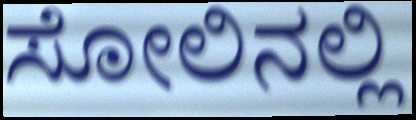
ಸೋಲಿನಲ್ಲಿ